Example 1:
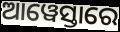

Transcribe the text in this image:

ଆୱେସ୍ତାରେ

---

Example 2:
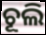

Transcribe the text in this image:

ଚୂଲି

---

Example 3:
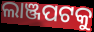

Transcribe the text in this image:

ଲାଞ୍ଜପଟକୁ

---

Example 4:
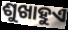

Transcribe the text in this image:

ଶୁଖାହୁଏ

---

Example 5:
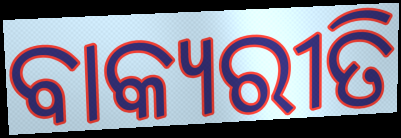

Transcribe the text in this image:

ବାକ୍ୟରୀତି